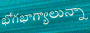
భోగభాగ్యాలున్నా